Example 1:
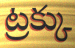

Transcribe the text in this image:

ట్రక్కు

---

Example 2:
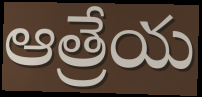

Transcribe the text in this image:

ఆత్రేయ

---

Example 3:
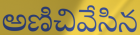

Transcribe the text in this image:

అణిచివేసిన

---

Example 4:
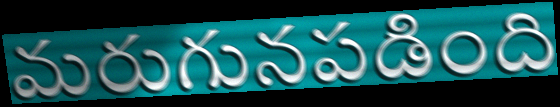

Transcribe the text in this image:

మరుగునపడింది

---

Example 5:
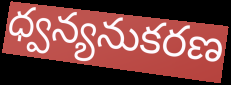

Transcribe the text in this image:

ధ్వన్యనుకరణ